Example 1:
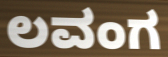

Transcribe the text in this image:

ಲವಂಗ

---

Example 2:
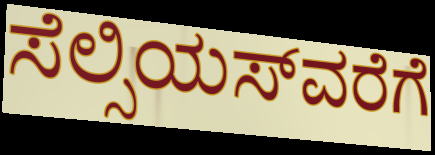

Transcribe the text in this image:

ಸೆಲ್ಸಿಯಸ್‍ವರೆಗೆ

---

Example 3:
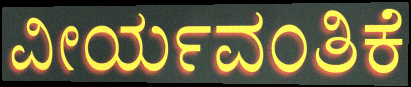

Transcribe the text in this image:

ವೀರ್ಯವಂತಿಕೆ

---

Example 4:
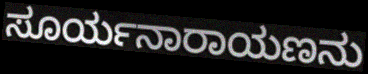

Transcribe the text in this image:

ಸೂರ್ಯನಾರಾಯಣನು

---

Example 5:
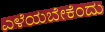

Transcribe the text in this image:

ಎಳೆಯಬೇಕೆಂದು